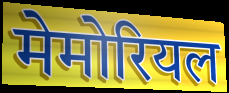
मेमोरियल